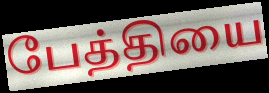
பேத்தியை